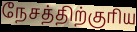
நேசத்திற்குரிய